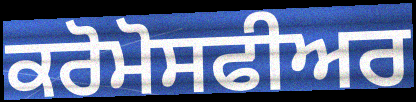
ਕਰੋਮੋਸਫੀਅਰ